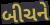
બીચને